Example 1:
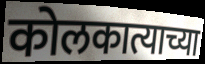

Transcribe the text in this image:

कोलकात्याच्या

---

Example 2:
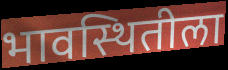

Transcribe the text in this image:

भावस्थितीला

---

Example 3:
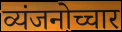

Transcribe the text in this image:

व्यंजनोच्चार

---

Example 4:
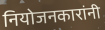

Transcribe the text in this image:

नियोजनकारांनी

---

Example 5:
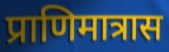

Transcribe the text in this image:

प्राणिमात्रास